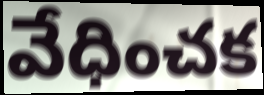
వేధించక